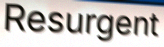
Resurgent